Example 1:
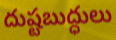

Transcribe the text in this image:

దుష్టబుద్ధులు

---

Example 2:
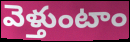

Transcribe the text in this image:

వెళ్తుంటాం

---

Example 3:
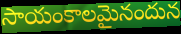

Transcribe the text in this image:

సాయంకాలమైనందున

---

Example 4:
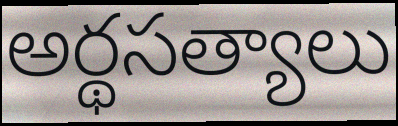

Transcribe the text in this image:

అర్థసత్యాలు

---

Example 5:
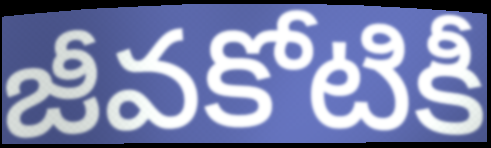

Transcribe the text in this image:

జీవకోటికీ